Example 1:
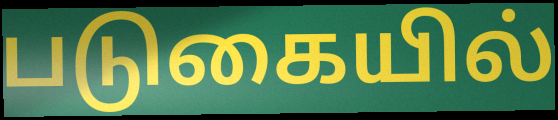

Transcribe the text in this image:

படுகையில்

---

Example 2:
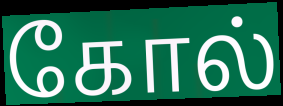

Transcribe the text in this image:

கோல்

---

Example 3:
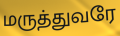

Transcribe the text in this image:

மருத்துவரே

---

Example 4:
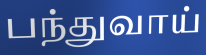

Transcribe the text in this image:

பந்துவாய்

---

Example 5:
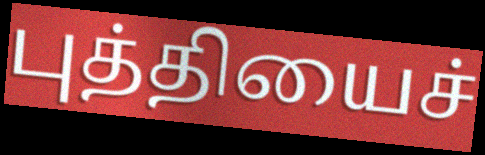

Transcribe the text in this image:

புத்தியைச்